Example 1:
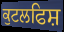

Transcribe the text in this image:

ਕੁਟਲਫਿਸ਼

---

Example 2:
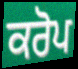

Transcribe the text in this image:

ਕਰੋਪ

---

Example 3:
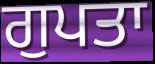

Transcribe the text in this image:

ਗੁਪਤਾ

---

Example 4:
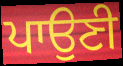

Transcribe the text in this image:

ਪਾਉਣੀ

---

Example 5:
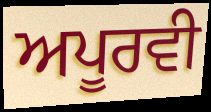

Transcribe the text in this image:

ਅਪੂਰਵੀ